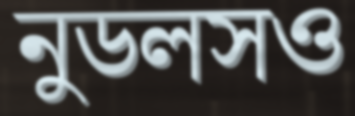
নুডলসও